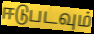
ஈடுபடவும்